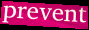
prevent